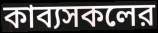
কাব্যসকলের